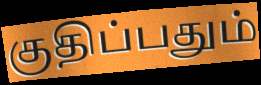
குதிப்பதும்